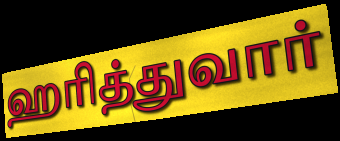
ஹரித்துவார்